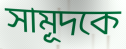
সামূদকে